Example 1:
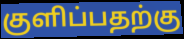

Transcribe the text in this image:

குளிப்பதற்கு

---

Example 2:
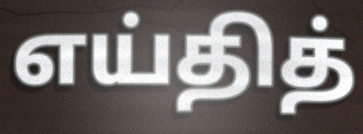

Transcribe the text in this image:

எய்தித்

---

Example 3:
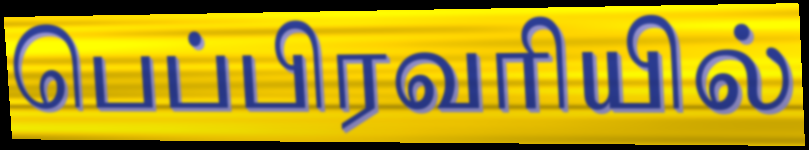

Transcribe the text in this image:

பெப்பிரவரியில்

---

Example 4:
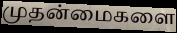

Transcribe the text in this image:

முதன்மைகளை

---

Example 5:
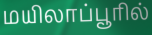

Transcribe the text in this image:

மயிலாப்பூரில்